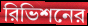
রিভিশনের